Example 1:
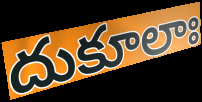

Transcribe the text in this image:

దుకూలాః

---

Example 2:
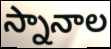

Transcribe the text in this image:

స్నానాల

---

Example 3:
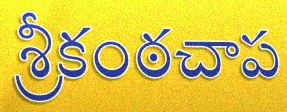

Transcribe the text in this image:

శ్రీకంఠచాప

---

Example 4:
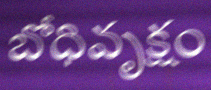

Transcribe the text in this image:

బోధివృక్షం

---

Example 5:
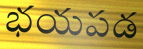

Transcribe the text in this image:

భయపడ